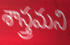
శాస్త్రమని